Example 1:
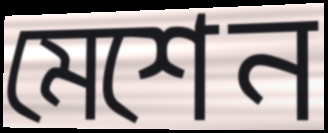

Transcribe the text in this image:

মেশেন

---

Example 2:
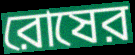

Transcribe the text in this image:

রোষের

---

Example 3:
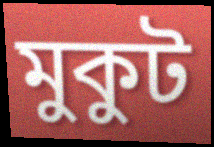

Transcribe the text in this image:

মুকুট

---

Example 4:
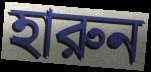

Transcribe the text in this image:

হারুন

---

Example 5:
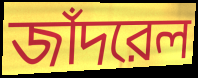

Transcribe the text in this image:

জাঁদরেল